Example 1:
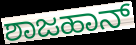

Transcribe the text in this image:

ಶಾಜಹಾನ್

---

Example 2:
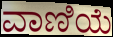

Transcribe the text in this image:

ವಾಣಿಯೆ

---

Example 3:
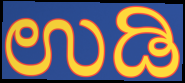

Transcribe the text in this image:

ಉಡಿ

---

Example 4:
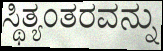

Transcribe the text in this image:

ಸ್ಥಿತ್ಯಂತರವನ್ನು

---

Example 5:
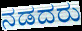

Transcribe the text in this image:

ನಡದರು